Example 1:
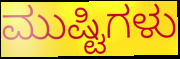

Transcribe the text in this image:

ಮುಷ್ಟಿಗಳು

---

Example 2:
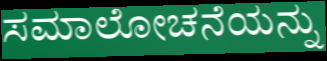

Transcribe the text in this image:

ಸಮಾಲೋಚನೆಯನ್ನು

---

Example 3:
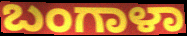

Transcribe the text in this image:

ಬಂಗಾಳಾ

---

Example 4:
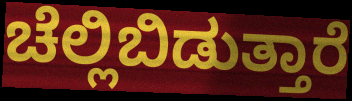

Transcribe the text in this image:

ಚೆಲ್ಲಿಬಿಡುತ್ತಾರೆ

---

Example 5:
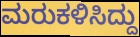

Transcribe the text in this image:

ಮರುಕಳಿಸಿದ್ದು